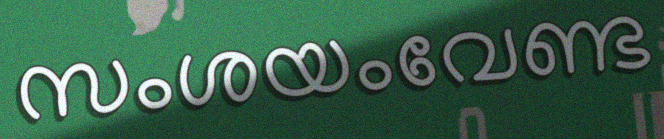
സംശയംവേണ്ട